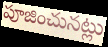
పూజించునట్లు